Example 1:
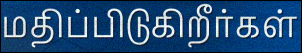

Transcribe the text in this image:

மதிப்பிடுகிறீர்கள்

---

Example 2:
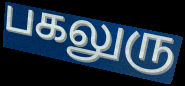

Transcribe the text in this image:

பகலுரு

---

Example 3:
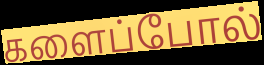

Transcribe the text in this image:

களைப்போல்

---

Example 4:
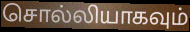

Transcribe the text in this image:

சொல்லியாகவும்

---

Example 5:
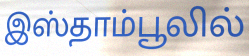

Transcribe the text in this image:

இஸ்தாம்பூலில்